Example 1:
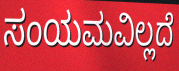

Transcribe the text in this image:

ಸಂಯಮವಿಲ್ಲದೆ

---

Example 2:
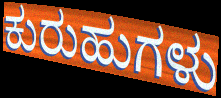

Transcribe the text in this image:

ಕುರುಹುಗಳು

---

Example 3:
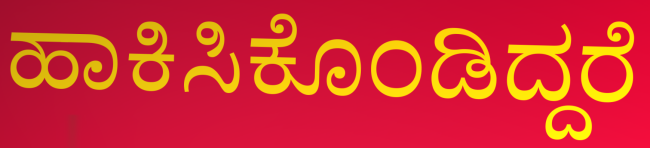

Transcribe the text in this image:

ಹಾಕಿಸಿಕೊಂಡಿದ್ದರೆ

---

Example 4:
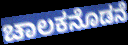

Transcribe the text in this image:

ಚಾಲಕನೊಡನೆ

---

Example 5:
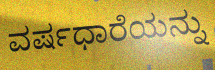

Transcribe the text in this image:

ವರ್ಷಧಾರೆಯನ್ನು